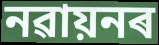
নৱায়নৰ